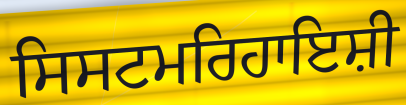
ਸਿਸਟਮਰਿਹਾਇਸ਼ੀ